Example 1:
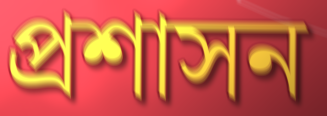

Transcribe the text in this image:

প্রশাসন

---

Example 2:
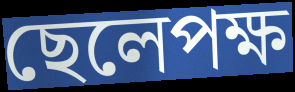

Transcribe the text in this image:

ছেলেপক্ষ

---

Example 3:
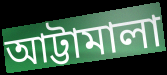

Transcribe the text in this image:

আট্টামালা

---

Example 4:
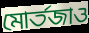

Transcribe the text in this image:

মোর্তজাও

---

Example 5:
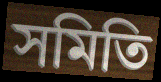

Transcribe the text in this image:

সমিতি